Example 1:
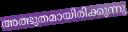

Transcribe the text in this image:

അത്ഭുതമായിരിക്കുന്നു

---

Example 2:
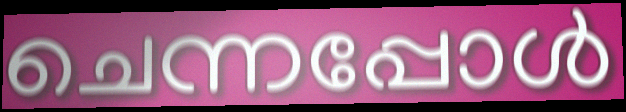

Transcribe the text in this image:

ചെന്നപ്പോൾ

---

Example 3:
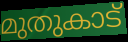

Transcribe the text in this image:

മുതുകാട്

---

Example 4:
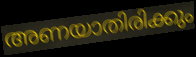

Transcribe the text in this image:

അണയാതിരിക്കും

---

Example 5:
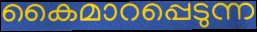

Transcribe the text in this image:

കൈമാറപ്പെടുന്ന